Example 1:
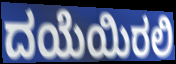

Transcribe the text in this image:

ದಯೆಯಿರಲಿ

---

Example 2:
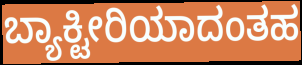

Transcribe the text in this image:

ಬ್ಯಾಕ್ಟೀರಿಯಾದಂತಹ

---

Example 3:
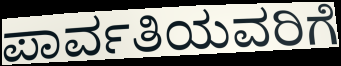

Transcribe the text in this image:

ಪಾರ್ವತಿಯವರಿಗೆ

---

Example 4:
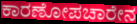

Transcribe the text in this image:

ಕಾರಣೋಪಚಾರೇನ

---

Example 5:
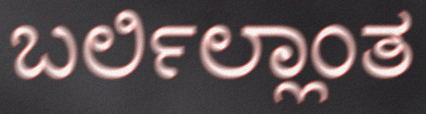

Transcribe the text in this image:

ಬರ್ಲಿಲ್ಲಾಂತ